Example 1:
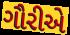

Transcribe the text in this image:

ગૌરીએ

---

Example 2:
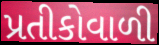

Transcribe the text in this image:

પ્રતીકોવાળી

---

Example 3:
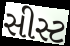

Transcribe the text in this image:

સીસ્ટ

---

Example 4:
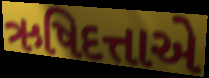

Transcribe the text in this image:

ઋષિદત્તાએ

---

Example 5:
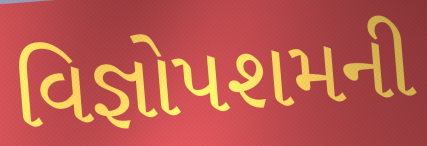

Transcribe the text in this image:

વિજ્ઞોપશમની